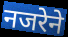
नजरेने